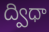
ద్విధా